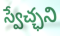
స్వేచ్ఛని